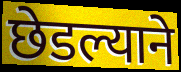
छेडल्याने